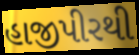
હાજીપીરથી